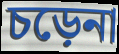
চড়েনা